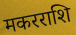
मकरराशि